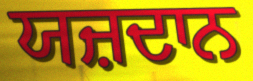
ਯਜ਼ਦਾਨ